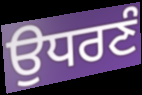
ਉਧਰਣੰ